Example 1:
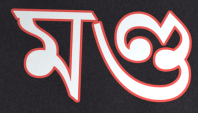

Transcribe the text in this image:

মণ্ড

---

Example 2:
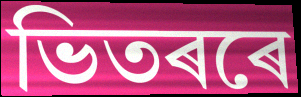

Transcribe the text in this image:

ভিতৰৰে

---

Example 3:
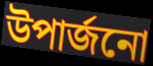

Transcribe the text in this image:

উপাৰ্জনো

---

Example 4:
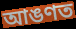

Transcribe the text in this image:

আঙণত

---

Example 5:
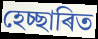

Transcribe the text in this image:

হেচ্ছাৰিত